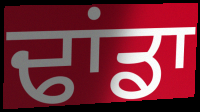
ਢਾਂਡਾ